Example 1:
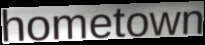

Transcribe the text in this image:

hometown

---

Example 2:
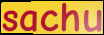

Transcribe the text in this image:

sachu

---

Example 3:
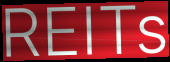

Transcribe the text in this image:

REITs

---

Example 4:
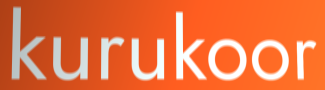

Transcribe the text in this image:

kurukoor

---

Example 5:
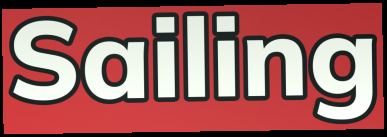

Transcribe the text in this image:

Sailing